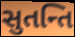
સુતન્તિ